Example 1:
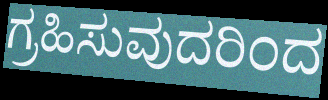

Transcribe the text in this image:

ಗ್ರಹಿಸುವುದರಿಂದ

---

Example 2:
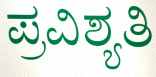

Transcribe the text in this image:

ಪ್ರವಿಶ್ಯತಿ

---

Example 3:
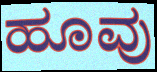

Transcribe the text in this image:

ಹೂವು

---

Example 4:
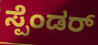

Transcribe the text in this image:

ಸ್ಪೆಂಡರ್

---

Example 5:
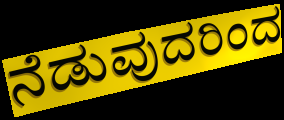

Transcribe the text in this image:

ನೆಡುವುದರಿಂದ